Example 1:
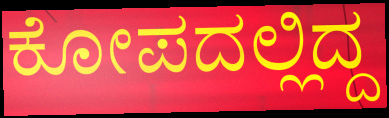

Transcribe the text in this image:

ಕೋಪದಲ್ಲಿದ್ದ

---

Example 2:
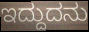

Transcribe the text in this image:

ಇದ್ದುದನು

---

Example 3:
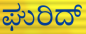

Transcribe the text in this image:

ಘುರಿದ್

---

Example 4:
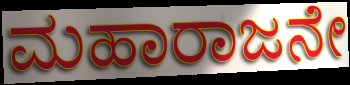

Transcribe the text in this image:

ಮಹಾರಾಜನೇ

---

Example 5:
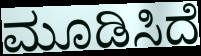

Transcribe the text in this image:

ಮೂಡಿಸಿದೆ